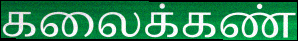
கலைக்கண்